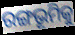
ରଙ୍ଗଭୂମିକୁ